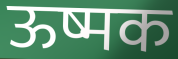
ऊष्मक